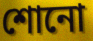
শোনো